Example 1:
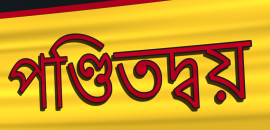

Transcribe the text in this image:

পণ্ডিতদ্বয়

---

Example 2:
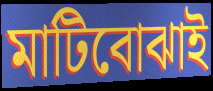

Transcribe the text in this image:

মাটিবোঝাই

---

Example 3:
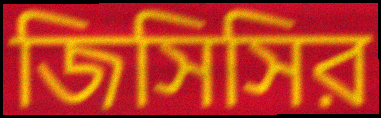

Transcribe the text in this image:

জিসিসির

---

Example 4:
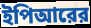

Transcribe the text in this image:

ইপিআরের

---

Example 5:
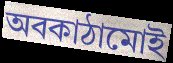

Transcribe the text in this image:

অবকাঠামোই